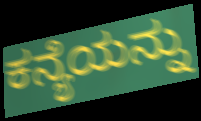
ಕನ್ಯೆಯನ್ನು